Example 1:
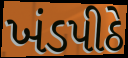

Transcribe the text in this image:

ખંડપીઠે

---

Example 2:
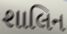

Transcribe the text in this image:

શાલિન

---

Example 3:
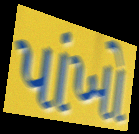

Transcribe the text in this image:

પાંખો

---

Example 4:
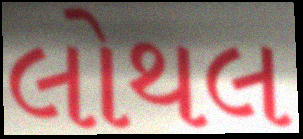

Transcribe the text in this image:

લોથલ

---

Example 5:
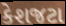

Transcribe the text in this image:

કેશજટા